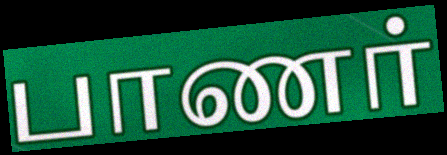
பாணர்